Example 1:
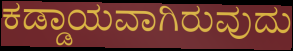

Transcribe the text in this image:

ಕಡ್ಡಾಯವಾಗಿರುವುದು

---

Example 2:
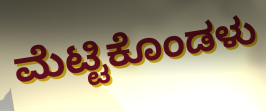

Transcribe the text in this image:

ಮೆಟ್ಟಿಕೊಂಡಳು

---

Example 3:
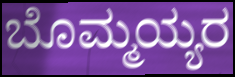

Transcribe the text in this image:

ಬೊಮ್ಮಯ್ಯರ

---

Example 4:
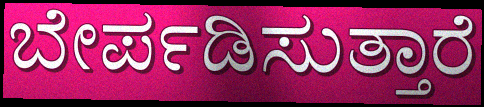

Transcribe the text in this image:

ಬೇರ್ಪಡಿಸುತ್ತಾರೆ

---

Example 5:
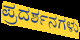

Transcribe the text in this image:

ಪ್ರದರ್ಶನಗಳು